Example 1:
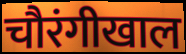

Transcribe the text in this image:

चौरंगीखाल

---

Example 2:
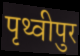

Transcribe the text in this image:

पृथ्वीपुर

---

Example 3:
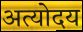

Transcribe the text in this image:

अत्योदय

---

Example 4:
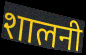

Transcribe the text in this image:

शालनी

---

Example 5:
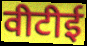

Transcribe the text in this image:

वीटीई